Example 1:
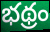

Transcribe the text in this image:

భథ్రం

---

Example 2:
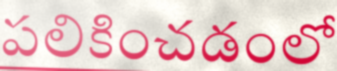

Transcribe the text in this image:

పలికించడంలో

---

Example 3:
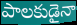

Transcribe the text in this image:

పాలకుడైనా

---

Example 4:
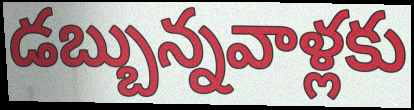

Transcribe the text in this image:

డబ్బున్నవాళ్లకు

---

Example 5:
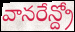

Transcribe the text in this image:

వానరేన్ద్రో